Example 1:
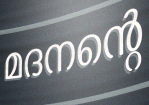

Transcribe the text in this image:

മദനന്റെ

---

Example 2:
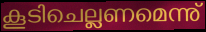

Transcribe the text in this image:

കൂടിചെല്ലണമെന്നു്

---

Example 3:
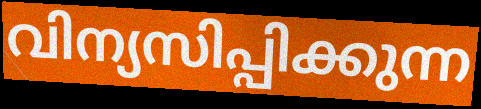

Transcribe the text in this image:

വിന്യസിപ്പിക്കുന്ന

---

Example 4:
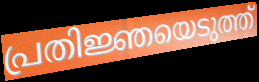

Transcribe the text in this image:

പ്രതിജ്ഞയെടുത്ത്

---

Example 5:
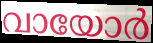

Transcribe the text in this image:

വായോർ